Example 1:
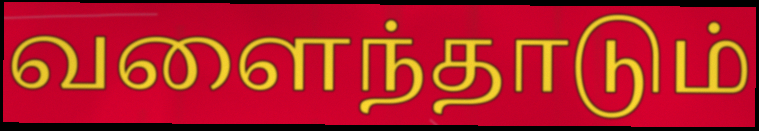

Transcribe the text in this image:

வளைந்தாடும்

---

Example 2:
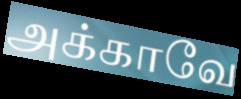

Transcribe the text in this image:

அக்காவே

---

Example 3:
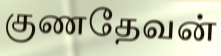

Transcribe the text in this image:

குணதேவன்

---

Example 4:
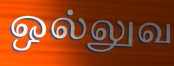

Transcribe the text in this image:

ஒல்லுவ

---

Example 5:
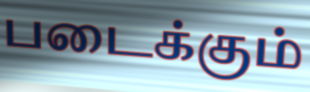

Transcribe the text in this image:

படைக்கும்